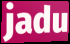
jadu